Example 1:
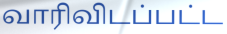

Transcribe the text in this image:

வாரிவிடப்பட்ட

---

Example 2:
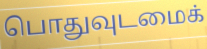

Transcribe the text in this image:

பொதுவுடமைக்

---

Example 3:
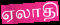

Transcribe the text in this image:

ஏலாதி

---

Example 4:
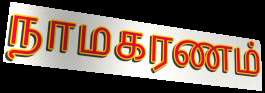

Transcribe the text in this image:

நாமகரணம்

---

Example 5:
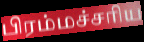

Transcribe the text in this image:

பிரம்மச்சரிய